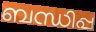
ബന്ധിപ്പ